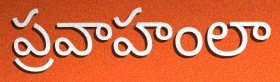
ప్రవాహంలా